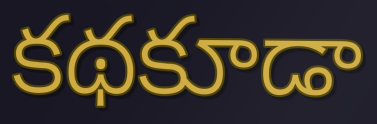
కథకూడా